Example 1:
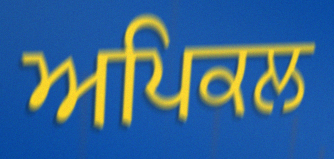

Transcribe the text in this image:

ਅਪਿਕਲ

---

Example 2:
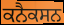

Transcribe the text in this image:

ਕਨੈਕਸਨ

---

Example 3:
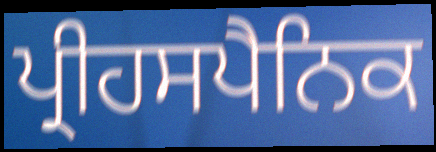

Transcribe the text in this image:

ਪ੍ਰੀਹਸਪੈਨਿਕ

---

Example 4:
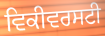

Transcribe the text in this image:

ਵਿਕੀਵਰਸਟੀ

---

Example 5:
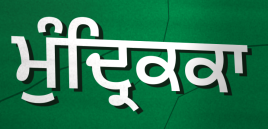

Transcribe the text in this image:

ਮੁੰਦ੍ਰਿਕਕਾ